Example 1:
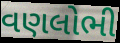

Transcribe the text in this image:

વણલોભી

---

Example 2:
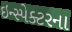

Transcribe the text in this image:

ઇન્સ્પેક્ટરના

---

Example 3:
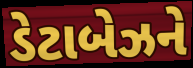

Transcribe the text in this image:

ડેટાબેઝને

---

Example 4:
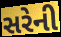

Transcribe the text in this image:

સરેની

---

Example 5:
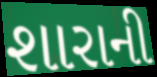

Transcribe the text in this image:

શારાની